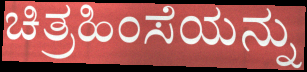
ಚಿತ್ರಹಿಂಸೆಯನ್ನು